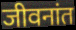
जीवनांत